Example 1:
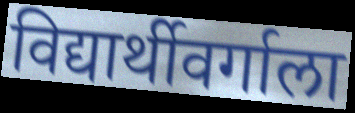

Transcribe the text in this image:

विद्यार्थीवर्गाला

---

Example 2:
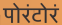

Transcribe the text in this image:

पोरंटोरं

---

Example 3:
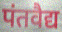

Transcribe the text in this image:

पंतवैद्य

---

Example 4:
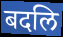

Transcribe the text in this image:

बदलि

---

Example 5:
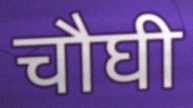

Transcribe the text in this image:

चौघी